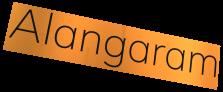
Alangaram